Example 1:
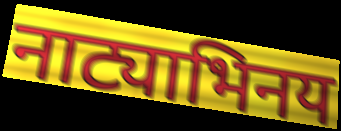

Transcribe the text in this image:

नाट्याभिनय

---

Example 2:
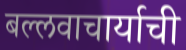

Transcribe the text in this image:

बल्लवाचार्याची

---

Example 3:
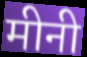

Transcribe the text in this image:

मीनी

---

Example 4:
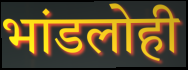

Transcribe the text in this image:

भांडलोही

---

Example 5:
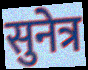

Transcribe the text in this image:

सुनेत्र